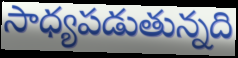
సాధ్యపడుతున్నది